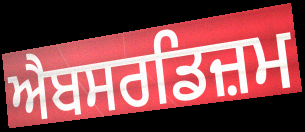
ਐਬਸਰਡਿਜ਼ਮ